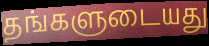
தங்களுடையது